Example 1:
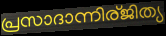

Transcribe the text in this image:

പ്രസാദാന്നിര്ജിത്യ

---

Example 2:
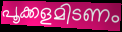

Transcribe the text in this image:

പൂക്കളമിടണം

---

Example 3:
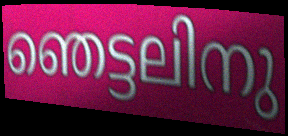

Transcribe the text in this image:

ഞെട്ടലിനു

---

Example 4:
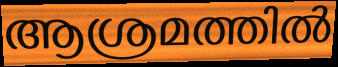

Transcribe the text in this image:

ആശ്രമത്തിൽ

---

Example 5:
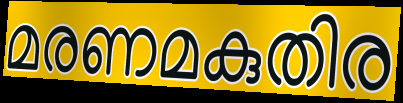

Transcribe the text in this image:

മരണമകുതിര